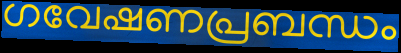
ഗവേഷണപ്രബന്ധം